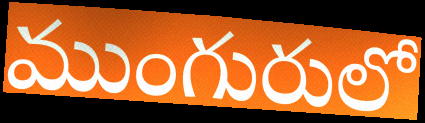
ముంగురులో